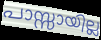
പാസ്സായില്ല